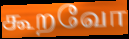
கூறவோ